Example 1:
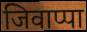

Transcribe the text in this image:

जिवाप्पा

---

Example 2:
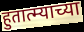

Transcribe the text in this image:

हुतात्म्याच्या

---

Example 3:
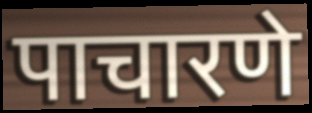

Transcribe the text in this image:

पाचारणे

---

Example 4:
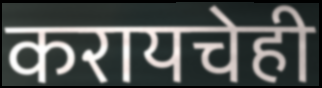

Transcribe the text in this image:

करायचेही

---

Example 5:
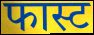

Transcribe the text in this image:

फास्ट